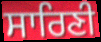
ਸਾਰਿਣੀ